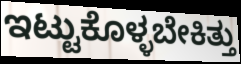
ಇಟ್ಟುಕೊಳ್ಳಬೇಕಿತ್ತು